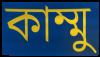
কাম্মু